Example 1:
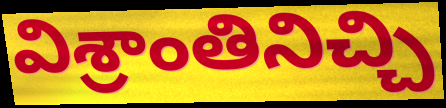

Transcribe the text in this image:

విశ్రాంతినిచ్చి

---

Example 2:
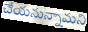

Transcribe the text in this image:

చేయనున్నామని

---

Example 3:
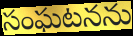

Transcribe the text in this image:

సంఘటనను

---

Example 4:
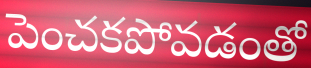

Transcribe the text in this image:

పెంచకపోవడంతో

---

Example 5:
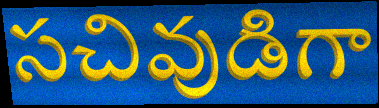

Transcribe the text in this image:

సచివుడిగా